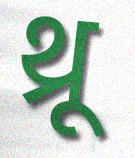
थ्रू